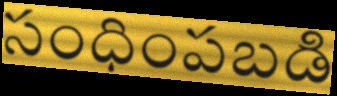
సంధింపబడి